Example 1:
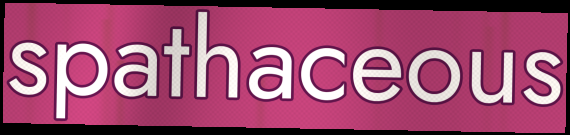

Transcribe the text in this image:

spathaceous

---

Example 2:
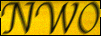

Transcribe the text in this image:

NWO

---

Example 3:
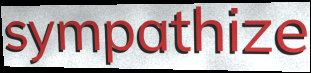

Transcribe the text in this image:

sympathize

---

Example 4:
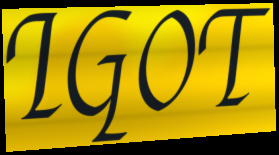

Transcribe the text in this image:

IGOT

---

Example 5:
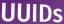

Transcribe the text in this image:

UUIDs